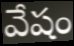
వేషం